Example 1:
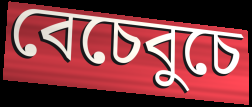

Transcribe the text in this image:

বেচেবুচে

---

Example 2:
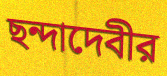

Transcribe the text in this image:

ছন্দাদেবীর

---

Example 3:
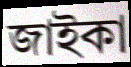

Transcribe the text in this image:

জাইকা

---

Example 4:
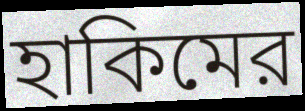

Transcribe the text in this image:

হাকিমের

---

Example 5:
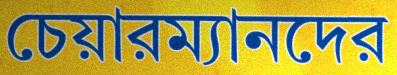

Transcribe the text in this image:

চেয়ারম্যানদের